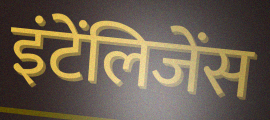
इंटेंलिजेंस